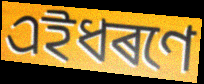
এইধৰণে